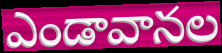
ఎండావానల